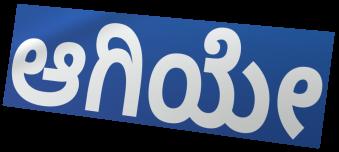
ಆಗಿಯೇ